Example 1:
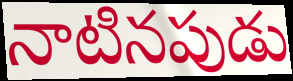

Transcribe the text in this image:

నాటినపుడు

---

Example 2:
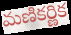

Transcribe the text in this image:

మణికర్ణిక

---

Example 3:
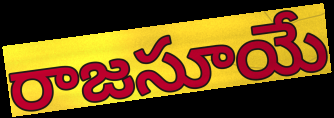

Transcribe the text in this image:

రాజసూయే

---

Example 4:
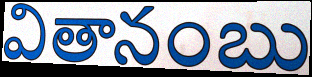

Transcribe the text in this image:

వితానంబు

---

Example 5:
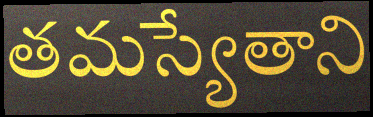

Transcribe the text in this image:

తమస్యేతాని